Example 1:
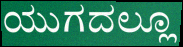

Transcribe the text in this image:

ಯುಗದಲ್ಲೂ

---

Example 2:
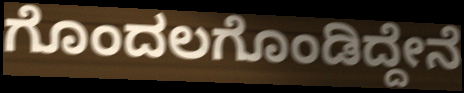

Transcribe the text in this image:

ಗೊಂದಲಗೊಂಡಿದ್ದೇನೆ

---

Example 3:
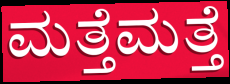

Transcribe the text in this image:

ಮತ್ತೆಮತ್ತೆ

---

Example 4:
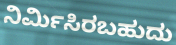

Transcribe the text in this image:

ನಿರ್ಮಿಸಿರಬಹುದು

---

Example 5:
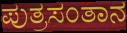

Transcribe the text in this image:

ಪುತ್ರಸಂತಾನ